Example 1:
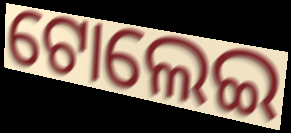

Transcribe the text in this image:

ଟୋଲେଇ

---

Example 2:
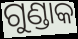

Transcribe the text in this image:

ଗୁଣ୍ଡାକ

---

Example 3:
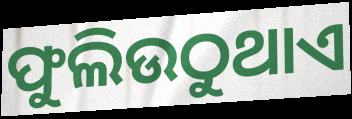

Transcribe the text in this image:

ଫୁଲିଉଠୁଥାଏ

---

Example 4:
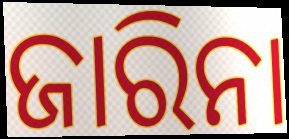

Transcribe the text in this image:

ଜାରିନା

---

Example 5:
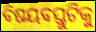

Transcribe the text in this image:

ବିଷୟବସ୍ତୁଟିକୁ